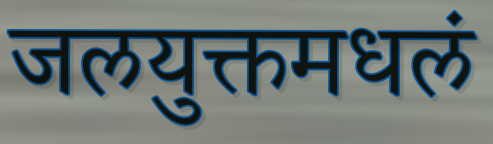
जलयुक्तमधलं